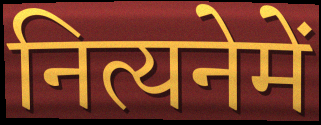
नित्यनेमें